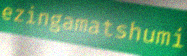
ezingamatshumi